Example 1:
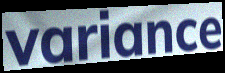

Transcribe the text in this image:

variance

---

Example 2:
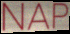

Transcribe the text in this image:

NAP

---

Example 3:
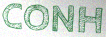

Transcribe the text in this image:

CONH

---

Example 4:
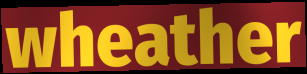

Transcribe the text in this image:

wheather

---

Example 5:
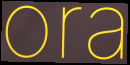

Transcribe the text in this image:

ora